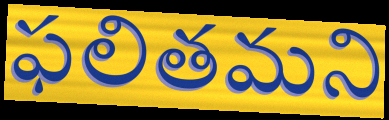
ఫలితమని